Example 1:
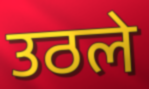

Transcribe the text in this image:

उठले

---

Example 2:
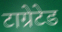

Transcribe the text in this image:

टाग्रेटेड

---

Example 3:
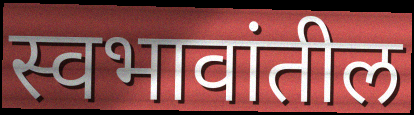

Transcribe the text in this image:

स्वभावांतील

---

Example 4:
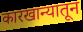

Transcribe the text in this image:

कारखान्यातून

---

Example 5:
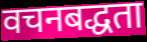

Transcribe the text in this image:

वचनबद्धता